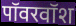
पॉवरवॉश